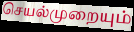
செயல்முறையும்